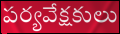
పర్యవేక్షకులు